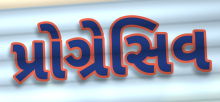
પ્રોગ્રેસિવ